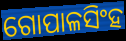
ଗୋପାଳସିଂହ